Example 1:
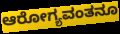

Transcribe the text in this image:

ಆರೋಗ್ಯವಂತನೂ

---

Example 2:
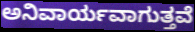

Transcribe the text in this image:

ಅನಿವಾರ್ಯವಾಗುತ್ತವೆ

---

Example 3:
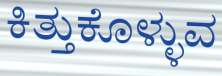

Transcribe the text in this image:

ಕಿತ್ತುಕೊಳ್ಳುವ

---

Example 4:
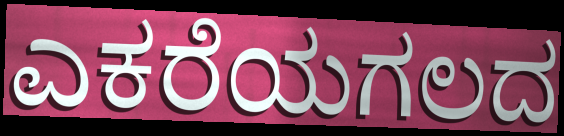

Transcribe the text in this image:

ಎಕರೆಯಗಲದ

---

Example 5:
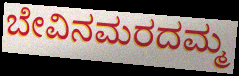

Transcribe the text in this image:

ಬೇವಿನಮರದಮ್ಮ